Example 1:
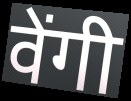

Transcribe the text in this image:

वेंगी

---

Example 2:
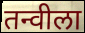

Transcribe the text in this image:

तन्वीला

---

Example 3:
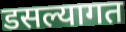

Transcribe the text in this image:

डसल्यागत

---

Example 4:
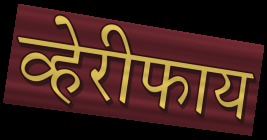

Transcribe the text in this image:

व्हेरीफाय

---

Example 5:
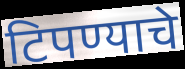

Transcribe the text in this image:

टिपण्याचे